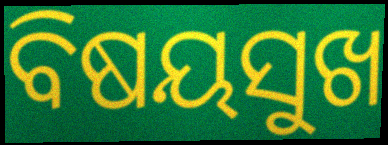
ବିଷୟସୁଖ